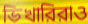
ভিখারিরাও